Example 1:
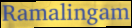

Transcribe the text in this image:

Ramalingam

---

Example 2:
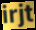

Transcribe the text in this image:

irjt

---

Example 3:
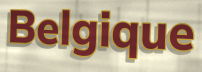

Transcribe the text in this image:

Belgique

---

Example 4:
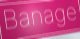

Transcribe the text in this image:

Banage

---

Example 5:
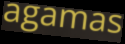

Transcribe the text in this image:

agamas